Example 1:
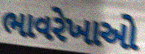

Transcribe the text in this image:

ભાવરેખાઓ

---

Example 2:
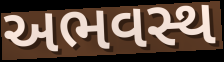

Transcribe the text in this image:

અભવસ્થ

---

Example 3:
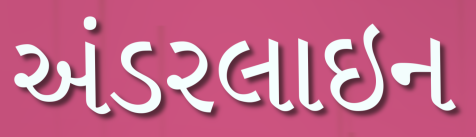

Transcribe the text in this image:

અંડરલાઇન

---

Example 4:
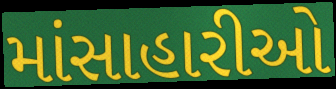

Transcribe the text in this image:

માંસાહારીઓ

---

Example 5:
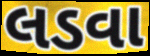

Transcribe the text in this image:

લડવા